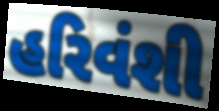
હરિવંશી